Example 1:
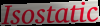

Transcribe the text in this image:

Isostatic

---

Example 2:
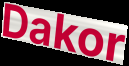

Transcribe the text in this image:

Dakor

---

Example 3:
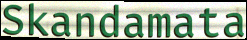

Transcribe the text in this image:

Skandamata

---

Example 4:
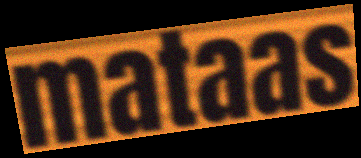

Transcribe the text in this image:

mataas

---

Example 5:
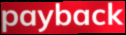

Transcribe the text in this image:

payback